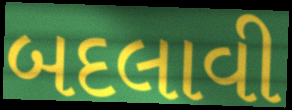
બદલાવી